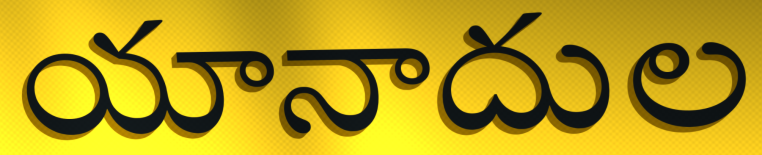
యానాదుల